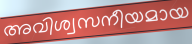
അവിശ്വസനീയമായ